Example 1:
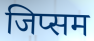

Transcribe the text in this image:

जिप्सम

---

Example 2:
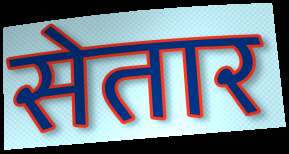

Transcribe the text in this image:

सेतार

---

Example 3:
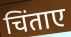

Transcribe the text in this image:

चिंताए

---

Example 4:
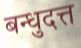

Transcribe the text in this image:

बन्धुदत्त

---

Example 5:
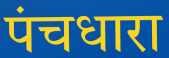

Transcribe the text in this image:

पंचधारा